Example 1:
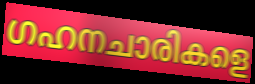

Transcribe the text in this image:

ഗഹനചാരികളെ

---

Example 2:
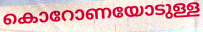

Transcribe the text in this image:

കൊറോണയോടുള്ള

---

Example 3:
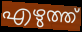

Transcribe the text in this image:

എഴുത്ത്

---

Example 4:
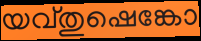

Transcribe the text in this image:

യവ്തുഷെങ്കോ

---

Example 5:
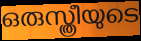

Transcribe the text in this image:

ഒരുസ്ത്രീയുടെ